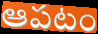
ఆపటం